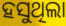
ହସୁଥିଲା